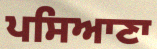
ਪਸਿਆਣਾ